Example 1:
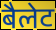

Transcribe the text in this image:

बैलेट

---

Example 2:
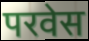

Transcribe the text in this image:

परवेस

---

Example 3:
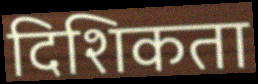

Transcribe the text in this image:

दिशिकता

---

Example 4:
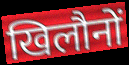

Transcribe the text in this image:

खिलौनों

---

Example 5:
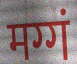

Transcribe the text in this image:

मग्गं